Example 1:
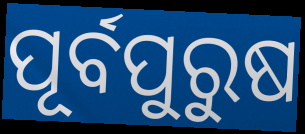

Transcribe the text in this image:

ପୂର୍ବପୁରୁଷ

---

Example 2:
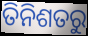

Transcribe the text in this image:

ତିନିଶତରୁ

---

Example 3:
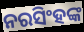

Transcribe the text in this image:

ନରସିଂହଙ୍କ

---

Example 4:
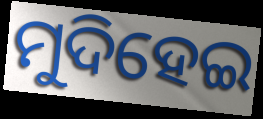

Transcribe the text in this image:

ମୁଦିହେଇ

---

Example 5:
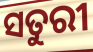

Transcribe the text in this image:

ସତୁରୀ